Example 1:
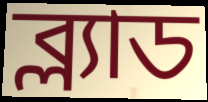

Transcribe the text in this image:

ব্ল্যাড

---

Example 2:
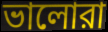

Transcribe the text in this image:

ভালোরা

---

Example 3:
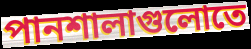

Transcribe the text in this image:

পানশালাগুলোতে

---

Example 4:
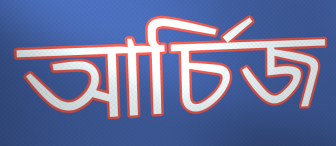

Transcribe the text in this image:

আর্চিজ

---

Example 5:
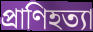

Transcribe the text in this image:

প্রাণিহত্যা